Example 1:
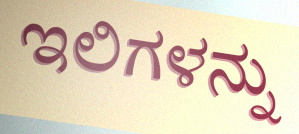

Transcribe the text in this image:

ಇಲಿಗಳನ್ನು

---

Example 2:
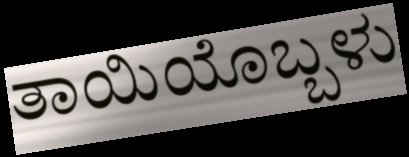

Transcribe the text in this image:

ತಾಯಿಯೊಬ್ಬಳು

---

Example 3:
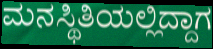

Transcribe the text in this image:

ಮನಸ್ಥಿತಿಯಲ್ಲಿದ್ದಾಗ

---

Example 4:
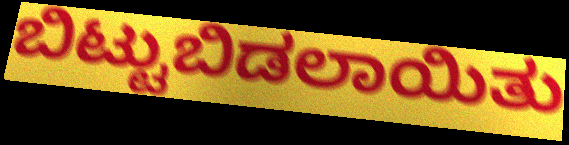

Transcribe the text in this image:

ಬಿಟ್ಟುಬಿಡಲಾಯಿತು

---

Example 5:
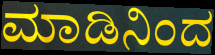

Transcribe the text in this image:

ಮಾಡಿನಿಂದ